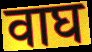
वाघ